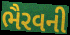
ભૈરવની